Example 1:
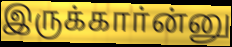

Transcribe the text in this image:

இருக்கார்ன்னு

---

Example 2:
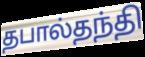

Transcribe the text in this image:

தபால்தந்தி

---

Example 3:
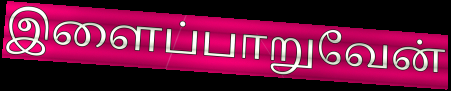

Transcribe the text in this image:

இளைப்பாறுவேன்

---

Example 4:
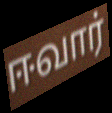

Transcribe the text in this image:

ஈவார்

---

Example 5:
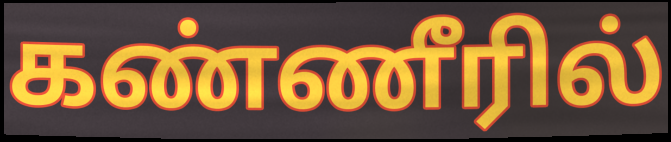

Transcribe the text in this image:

கண்ணீரில்